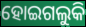
ହୋଇଗଲୁକି